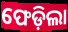
ଫେଡ଼ିଲା